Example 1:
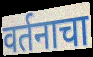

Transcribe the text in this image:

वर्तनाचा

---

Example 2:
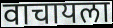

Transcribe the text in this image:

वाचायला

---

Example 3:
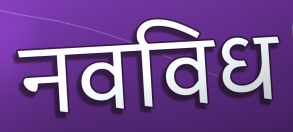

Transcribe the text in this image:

नवविध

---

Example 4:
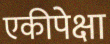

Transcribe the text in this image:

एकीपेक्षा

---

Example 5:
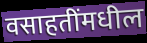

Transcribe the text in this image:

वसाहतींमधील